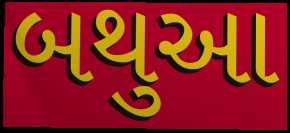
બથુઆ